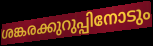
ശങ്കരക്കുറുപ്പിനോടും